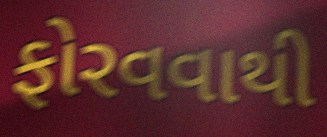
ફોરવવાથી